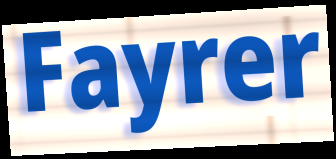
Fayrer